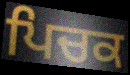
ਪਿਚਕ